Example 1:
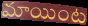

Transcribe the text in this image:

మాయింట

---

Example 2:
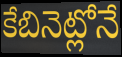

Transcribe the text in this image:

కేబినెట్లోనే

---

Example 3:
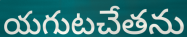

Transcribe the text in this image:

యగుటచేతను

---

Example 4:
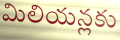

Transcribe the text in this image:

మిలియన్లకు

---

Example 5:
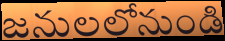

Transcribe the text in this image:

జనులలోనుండి